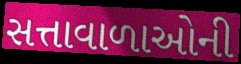
સત્તાવાળાઓની